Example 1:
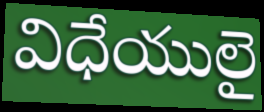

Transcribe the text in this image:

విధేయులై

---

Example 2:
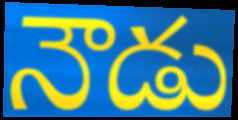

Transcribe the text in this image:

నౌడు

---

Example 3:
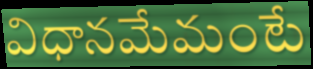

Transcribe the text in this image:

విధానమేమంటే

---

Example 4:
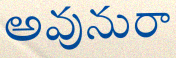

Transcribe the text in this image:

అవునురా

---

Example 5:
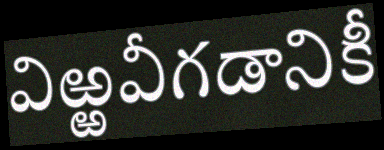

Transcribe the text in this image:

విఱ్ఱవీగడానికీ